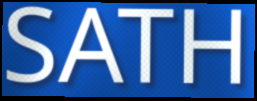
SATH